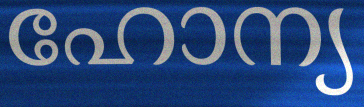
ഹോന്യ